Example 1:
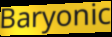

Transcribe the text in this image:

Baryonic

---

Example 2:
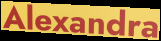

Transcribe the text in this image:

Alexandra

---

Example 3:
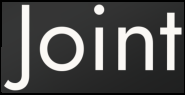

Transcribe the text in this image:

Joint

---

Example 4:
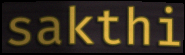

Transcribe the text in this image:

sakthi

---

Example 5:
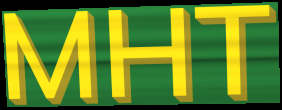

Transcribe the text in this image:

MHT